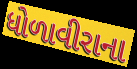
ધોળાવીરાના